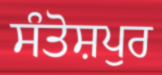
ਸੰਤੋਸ਼ਪੁਰ